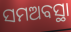
ସମଅବସ୍ଥା